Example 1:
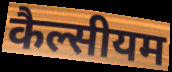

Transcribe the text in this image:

कैल्सीयम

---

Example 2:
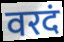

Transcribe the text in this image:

वरदं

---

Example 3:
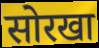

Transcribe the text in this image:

सोरखा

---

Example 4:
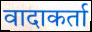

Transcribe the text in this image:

वादाकर्ता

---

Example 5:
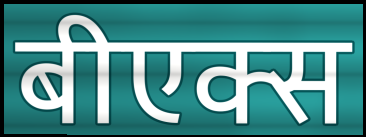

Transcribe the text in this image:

बीएक्स